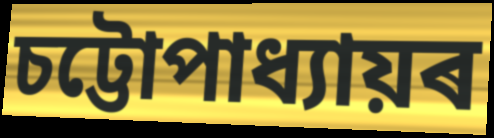
চট্টোপাধ্যায়ৰ